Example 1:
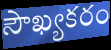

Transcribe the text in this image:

సౌఖ్యకరం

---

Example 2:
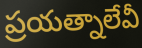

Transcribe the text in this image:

ప్రయత్నాలేవీ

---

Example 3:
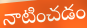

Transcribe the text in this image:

నాటించడం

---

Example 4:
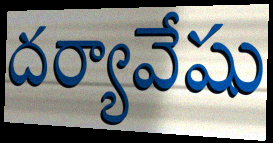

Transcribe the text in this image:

దర్యావేషు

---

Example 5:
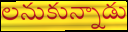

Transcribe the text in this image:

లనుకున్నాడు